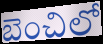
బెంచిలో